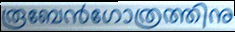
രൂബേൻഗോത്രത്തിനു